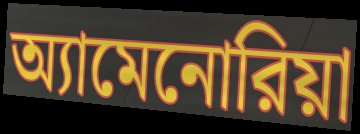
অ্যামেনোরিয়া